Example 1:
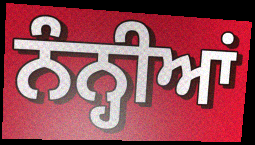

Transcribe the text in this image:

ਨੰਨ੍ਹੀਆਂ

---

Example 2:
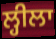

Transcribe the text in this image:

ਲ੍ਹੀਲਾ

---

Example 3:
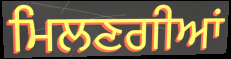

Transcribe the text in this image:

ਮਿਲਣਗੀਆਂ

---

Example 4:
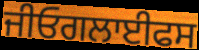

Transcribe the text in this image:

ਜੀਓਗਲਾਈਫਸ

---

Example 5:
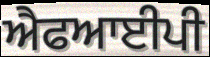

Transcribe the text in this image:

ਐਫਆਈਪੀ